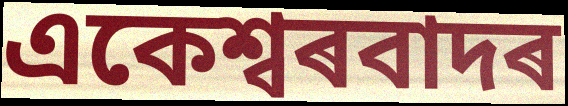
একেশ্বৰবাদৰ